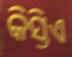
କିସ୍ତିଏ